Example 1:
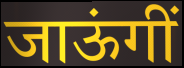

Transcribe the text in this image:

जाऊंगीं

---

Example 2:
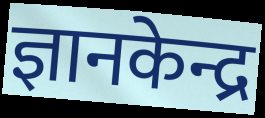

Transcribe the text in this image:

ज्ञानकेन्द्र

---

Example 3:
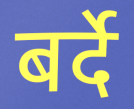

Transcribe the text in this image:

बर्दे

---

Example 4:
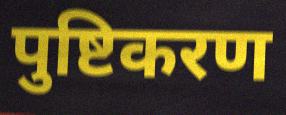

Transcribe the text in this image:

पुष्टिकरण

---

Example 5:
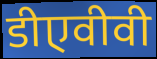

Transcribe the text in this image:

डीएवीवी